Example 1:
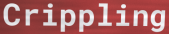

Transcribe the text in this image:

Crippling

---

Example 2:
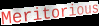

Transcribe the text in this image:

Meritorious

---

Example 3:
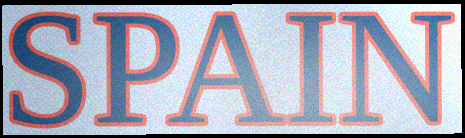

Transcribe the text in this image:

SPAIN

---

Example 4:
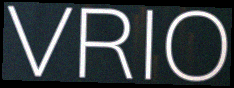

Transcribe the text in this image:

VRIO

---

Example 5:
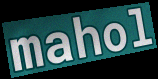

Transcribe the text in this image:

mahol